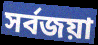
সর্বজয়া